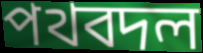
পথবদল